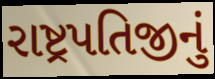
રાષ્ટ્રપતિજીનું